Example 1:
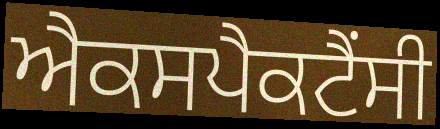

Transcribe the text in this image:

ਐਕਸਪੈਕਟੈਂਸੀ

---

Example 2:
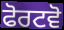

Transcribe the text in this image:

ਫੋਰਟਵੋ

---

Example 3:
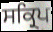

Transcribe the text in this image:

ਸਕ੍ਰਿਪ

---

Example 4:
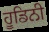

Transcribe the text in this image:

ਹੂਡਿਨੀ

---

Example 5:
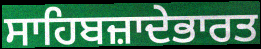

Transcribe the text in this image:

ਸਾਹਿਬਜ਼ਾਦੇਭਾਰਤ